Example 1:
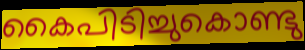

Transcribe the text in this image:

കൈപിടിച്ചുകൊണ്ടു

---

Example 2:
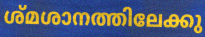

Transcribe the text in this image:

ശ്മശാനത്തിലേക്കു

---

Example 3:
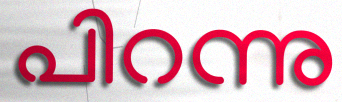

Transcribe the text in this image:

പിറന്നു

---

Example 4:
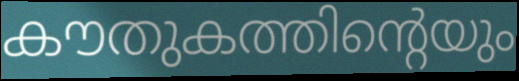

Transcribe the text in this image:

കൗതുകത്തിന്റെയും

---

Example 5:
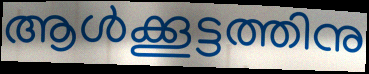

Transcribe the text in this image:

ആൾക്കൂട്ടത്തിനു